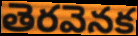
తెరవెనక